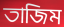
তাজিম